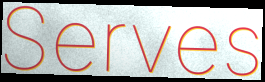
Serves